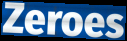
Zeroes